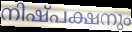
നിഷ്പക്ഷനും